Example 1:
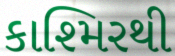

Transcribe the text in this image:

કાશ્મિરથી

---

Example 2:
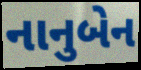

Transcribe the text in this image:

નાનુબેન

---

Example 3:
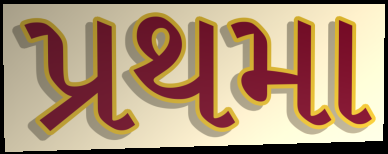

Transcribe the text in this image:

પ્રથમા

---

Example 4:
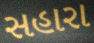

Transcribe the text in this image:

સહારા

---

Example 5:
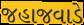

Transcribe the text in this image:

જહાજવાડે